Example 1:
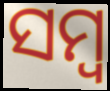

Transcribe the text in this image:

ସମ୍ବ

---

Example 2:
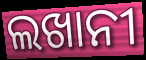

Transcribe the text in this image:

ଲଖାନୀ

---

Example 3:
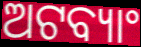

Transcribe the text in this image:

ଅଟବ୍ୟାଂ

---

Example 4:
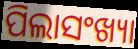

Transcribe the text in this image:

ପିଲାସଂଖ୍ୟା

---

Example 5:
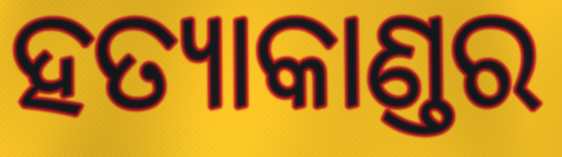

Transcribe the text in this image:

ହତ୍ୟାକାଣ୍ଡର